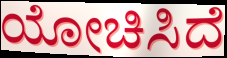
ಯೋಚಿಸಿದೆ